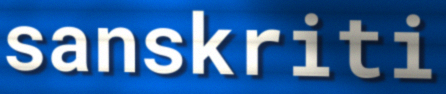
sanskriti